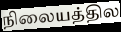
நிலையத்தில